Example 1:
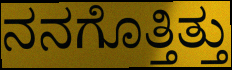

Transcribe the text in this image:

ನನಗೊತ್ತಿತ್ತು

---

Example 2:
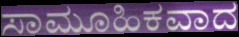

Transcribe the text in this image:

ಸಾಮೂಹಿಕವಾದ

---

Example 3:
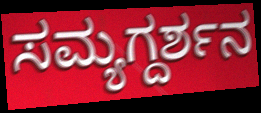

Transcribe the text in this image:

ಸಮ್ಯಗ್ದರ್ಶನ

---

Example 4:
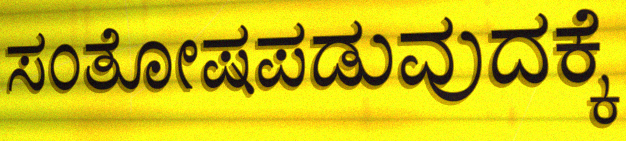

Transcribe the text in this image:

ಸಂತೋಷಪಡುವುದಕ್ಕೆ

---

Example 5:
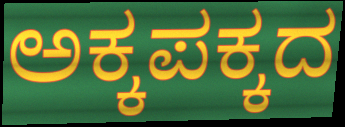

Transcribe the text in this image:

ಅಕ್ಕಪಕ್ಕದ